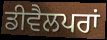
ਡੀਵੈਲਪਰਾਂ